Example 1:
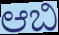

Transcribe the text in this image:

ಆಬಿ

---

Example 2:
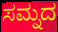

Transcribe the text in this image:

ಸಮ್ನದ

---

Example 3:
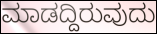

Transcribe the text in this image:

ಮಾಡದ್ದಿರುವುದು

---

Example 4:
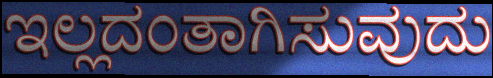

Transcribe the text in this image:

ಇಲ್ಲದಂತಾಗಿಸುವುದು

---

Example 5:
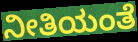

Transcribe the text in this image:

ನೀತಿಯಂತೆ